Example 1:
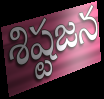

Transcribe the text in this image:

శిష్టజన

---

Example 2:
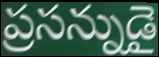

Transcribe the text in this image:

ప్రసన్నుడై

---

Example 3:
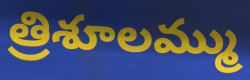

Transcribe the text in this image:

త్రిశూలమ్ము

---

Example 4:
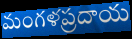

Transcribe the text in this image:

మంగళప్రదాయ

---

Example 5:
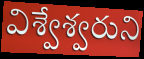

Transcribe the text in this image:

విశ్వేశ్వరుని